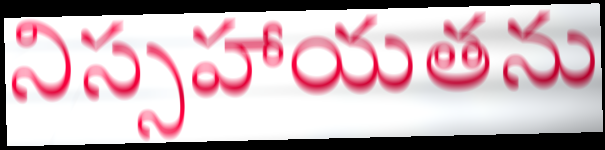
నిస్సహాయతను